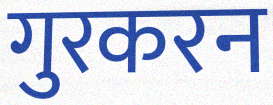
गुरकरन